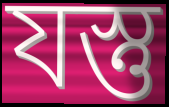
যস্তু